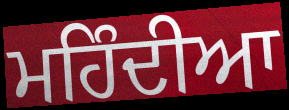
ਮਹਿੰਦੀਆ